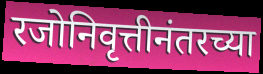
रजोनिवृत्तीनंतरच्या